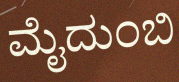
ಮೈದುಂಬಿ